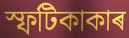
স্ফটিকাকাৰ